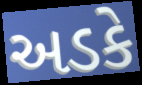
અડકે